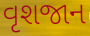
વૃશજાન